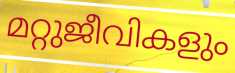
മറ്റുജീവികളും